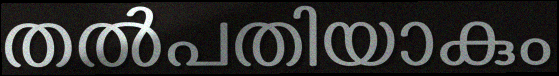
തൽപതിയാകും